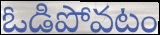
ఓడిపోవటం